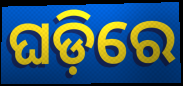
ଘଡ଼ିରେ